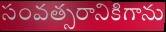
సంవత్సరానికిగాను